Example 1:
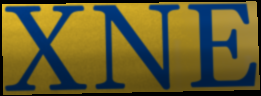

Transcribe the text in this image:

XNE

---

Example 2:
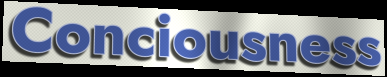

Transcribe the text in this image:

Conciousness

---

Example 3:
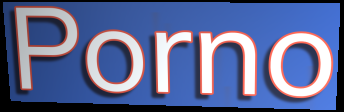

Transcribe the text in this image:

Porno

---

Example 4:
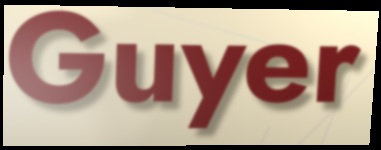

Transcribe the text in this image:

Guyer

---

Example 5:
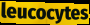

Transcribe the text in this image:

leucocytes